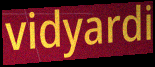
vidyardi